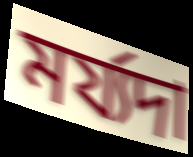
মৰ্য্যদা